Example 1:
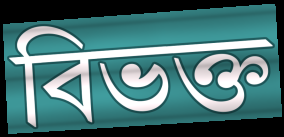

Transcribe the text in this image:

বিভক্ত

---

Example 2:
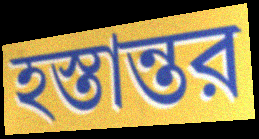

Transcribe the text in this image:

হস্তান্তর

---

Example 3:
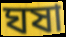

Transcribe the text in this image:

ঘষা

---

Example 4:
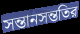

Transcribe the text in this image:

সন্তানসন্ততির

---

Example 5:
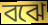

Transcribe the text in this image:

বঝে